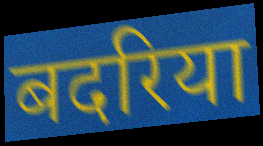
बदरिया